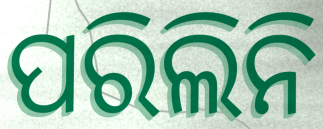
ପରିଲିନି